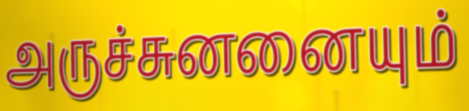
அருச்சுனனையும்